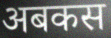
अबकस